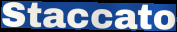
Staccato